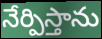
నేర్పిస్తాను